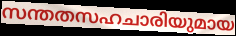
സന്തതസഹചാരിയുമായ